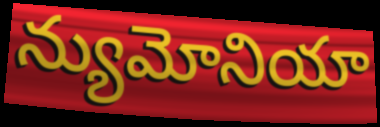
న్యుమోనియా